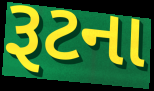
રૂટના